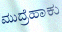
ಮುದ್ರೆಹಾಕು